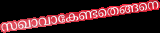
സഖാവാകേണ്ടതെങ്ങനെ